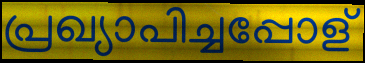
പ്രഖ്യാപിച്ചപ്പോള്